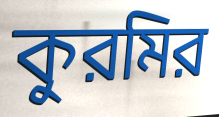
কুরমির